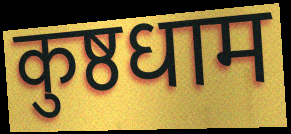
कुष्ठधाम